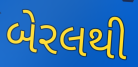
બેરલથી